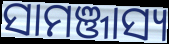
ସାମଞ୍ଜାସ୍ୟ